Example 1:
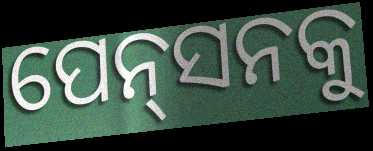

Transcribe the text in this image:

ପେନ୍‌ସନକୁ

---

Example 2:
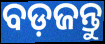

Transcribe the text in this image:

ବଡ଼ଜନ୍ତୁ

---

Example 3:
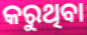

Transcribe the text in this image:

କରୁଥିବା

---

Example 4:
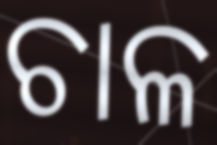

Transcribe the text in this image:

ଚାଳ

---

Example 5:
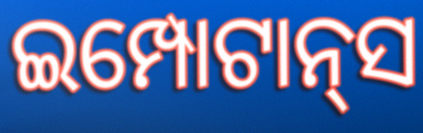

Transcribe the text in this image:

ଇମ୍ପୋଟାନ୍‌ସ